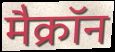
मैक्रॉन